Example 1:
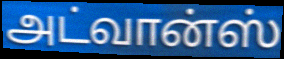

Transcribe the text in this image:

அட்வான்ஸ்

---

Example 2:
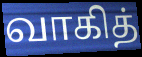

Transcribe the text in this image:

வாகித்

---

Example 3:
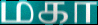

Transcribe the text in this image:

மகா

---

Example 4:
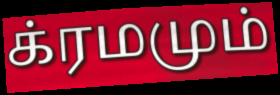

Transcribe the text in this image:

க்ரமமும்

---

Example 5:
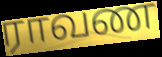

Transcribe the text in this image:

ராவண